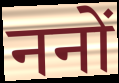
ननों